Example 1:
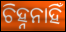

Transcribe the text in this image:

ଚିହ୍ନନାହିଁ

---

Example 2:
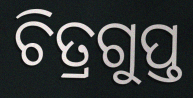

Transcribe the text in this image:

ଚିତ୍ରଗୁପ୍ତ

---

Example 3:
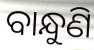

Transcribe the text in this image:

ବାନ୍ଧୁଣି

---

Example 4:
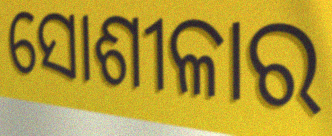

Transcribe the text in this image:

ସୋଶୀଳାର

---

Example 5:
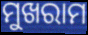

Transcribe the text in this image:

ମୁଖରାମ